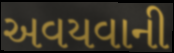
અવયવાની